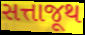
સત્તાજૂથ